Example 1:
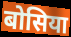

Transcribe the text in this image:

बोसिया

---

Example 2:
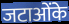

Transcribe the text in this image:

जटाओंके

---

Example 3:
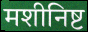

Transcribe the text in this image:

मशीनिष्ट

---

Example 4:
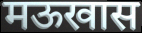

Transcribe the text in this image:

मऊखास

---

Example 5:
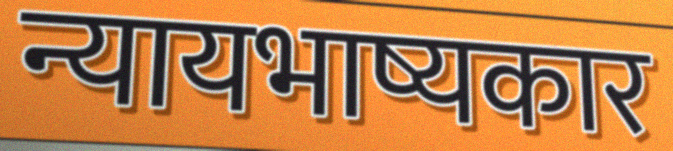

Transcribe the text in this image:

न्यायभाष्यकार